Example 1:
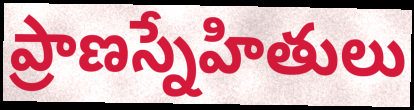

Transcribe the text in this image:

ప్రాణస్నేహితులు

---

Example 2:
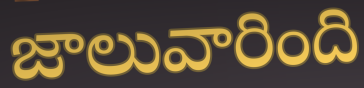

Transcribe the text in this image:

జాలువారింది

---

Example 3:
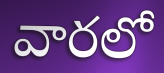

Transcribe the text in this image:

వారలో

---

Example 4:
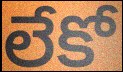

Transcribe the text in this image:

లేకో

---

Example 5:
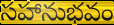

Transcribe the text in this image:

సహానుభవం